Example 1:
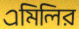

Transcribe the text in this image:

এমিলির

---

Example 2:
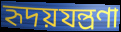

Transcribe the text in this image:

হৃদয়যন্ত্রণা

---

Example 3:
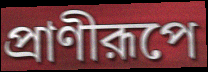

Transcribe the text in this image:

প্রাণীরূপে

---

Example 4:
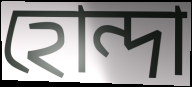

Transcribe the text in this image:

হোন্দা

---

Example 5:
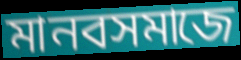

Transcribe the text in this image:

মানবসমাজে